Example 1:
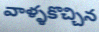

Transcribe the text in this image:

వాళ్ళకొచ్చిన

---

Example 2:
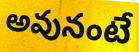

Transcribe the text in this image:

అవునంటే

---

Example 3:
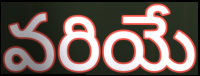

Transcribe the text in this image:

వరియే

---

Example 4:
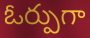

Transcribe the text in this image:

ఓర్పుగా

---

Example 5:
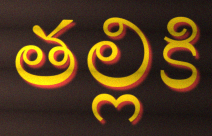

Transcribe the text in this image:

తల్లికి